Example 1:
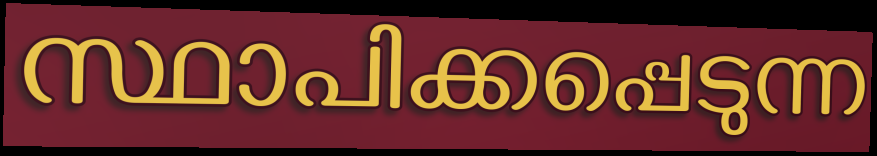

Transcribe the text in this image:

സ്ഥാപിക്കപ്പെടുന്ന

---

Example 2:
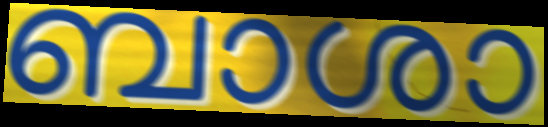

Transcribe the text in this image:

ബാശാ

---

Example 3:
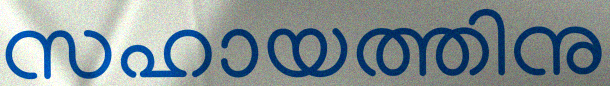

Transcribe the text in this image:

സഹായത്തിനു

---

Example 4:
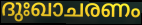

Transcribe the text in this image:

ദുഃഖാചരണം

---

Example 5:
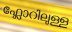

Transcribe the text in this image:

ഫ്ലോറിലുള്ള